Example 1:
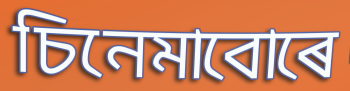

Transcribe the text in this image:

চিনেমাবোৰে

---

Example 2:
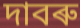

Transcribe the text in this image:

দাবৰু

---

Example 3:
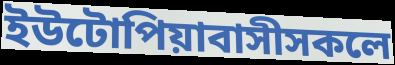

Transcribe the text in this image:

ইউটোপিয়াবাসীসকলে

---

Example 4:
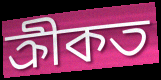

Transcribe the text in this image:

ক্ৰীকত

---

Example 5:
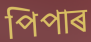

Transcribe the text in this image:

পিপাৰ